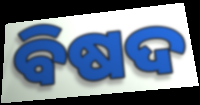
ବିଷଦ